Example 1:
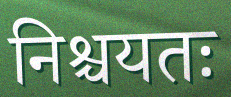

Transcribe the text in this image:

निश्चयतः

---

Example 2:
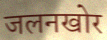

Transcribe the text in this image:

जलनखोर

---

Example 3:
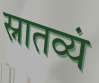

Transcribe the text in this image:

स्नातव्यं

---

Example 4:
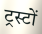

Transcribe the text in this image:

ट्रस्टों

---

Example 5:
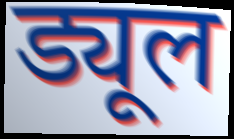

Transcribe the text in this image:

ड्यूल